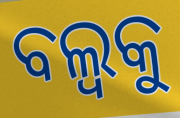
ବଲ୍ବକୁ